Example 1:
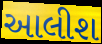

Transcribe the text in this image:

આલીશ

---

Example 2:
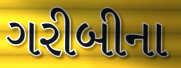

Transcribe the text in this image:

ગરીબીના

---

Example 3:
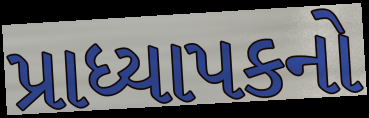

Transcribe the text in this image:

પ્રાધ્યાપકનો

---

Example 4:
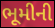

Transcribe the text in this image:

ભૂમીની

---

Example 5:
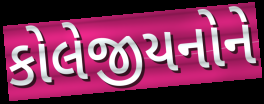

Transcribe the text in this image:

કોલેજીયનોને